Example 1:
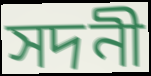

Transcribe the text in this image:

সদনী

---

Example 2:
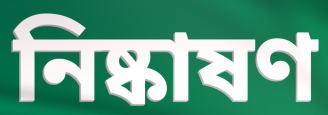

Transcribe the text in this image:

নিষ্কাষণ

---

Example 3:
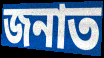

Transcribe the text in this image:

জনাত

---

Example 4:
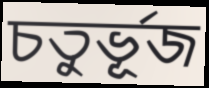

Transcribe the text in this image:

চতুৰ্ভূজ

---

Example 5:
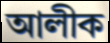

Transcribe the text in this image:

আলীক